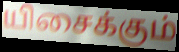
யிசைக்கும்